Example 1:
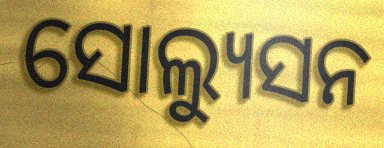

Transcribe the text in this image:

ସୋଲ୍ୟୁସନ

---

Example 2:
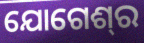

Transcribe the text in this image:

ଯୋଗେଶ୍‍ର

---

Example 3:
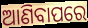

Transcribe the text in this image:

ଆଣିବାପରେ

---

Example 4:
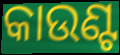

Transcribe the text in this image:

କାଉଣ୍ଟ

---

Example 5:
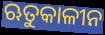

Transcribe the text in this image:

ଋତୁକାଳୀନ